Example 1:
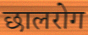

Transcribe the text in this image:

छालरोग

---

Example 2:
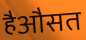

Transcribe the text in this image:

हैऔसत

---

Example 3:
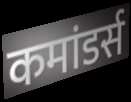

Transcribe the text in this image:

कमांडर्स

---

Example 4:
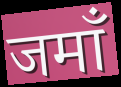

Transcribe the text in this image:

जमाँ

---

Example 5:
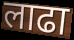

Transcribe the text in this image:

लाढा